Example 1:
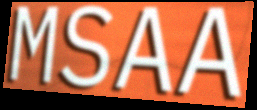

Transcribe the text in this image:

MSAA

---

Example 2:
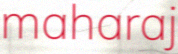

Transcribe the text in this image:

maharaj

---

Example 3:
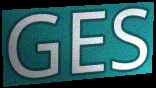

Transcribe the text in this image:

GES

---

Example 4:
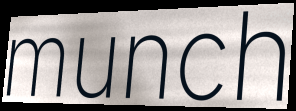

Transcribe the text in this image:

munch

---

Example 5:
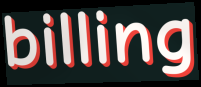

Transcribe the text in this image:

billing